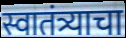
स्‍वातंत्र्याचा